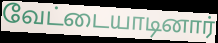
வேட்டையாடினார்